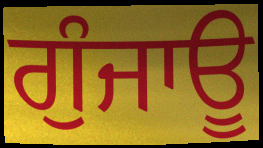
ਗੁੰਜਾਊ